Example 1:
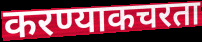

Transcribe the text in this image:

करण्याकचरता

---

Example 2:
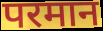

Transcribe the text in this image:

परमान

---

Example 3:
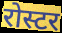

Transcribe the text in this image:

रोस्टर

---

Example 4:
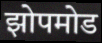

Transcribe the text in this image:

झोपमोड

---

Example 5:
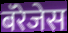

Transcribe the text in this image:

बॅरेजेस